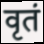
वृतं